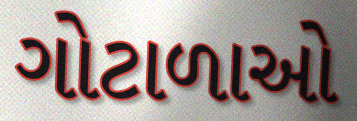
ગોટાળાઓ